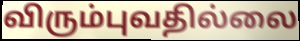
விரும்புவதில்லை